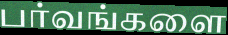
பர்வங்களை